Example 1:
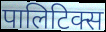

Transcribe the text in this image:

पालिटिक्स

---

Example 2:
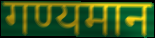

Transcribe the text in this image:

गण्यमान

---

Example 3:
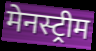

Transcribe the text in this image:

मेनस्‍ट्रीम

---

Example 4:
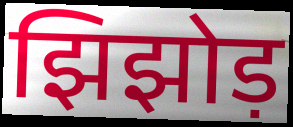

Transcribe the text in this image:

झिझोड़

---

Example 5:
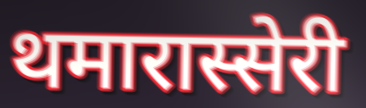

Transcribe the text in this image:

थमारास्सेरी